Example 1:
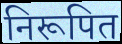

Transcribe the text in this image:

निरूपित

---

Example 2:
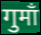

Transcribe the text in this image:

गुमाँ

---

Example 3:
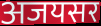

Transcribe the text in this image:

अजयसर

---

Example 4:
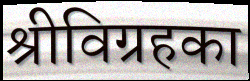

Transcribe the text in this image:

श्रीविग्रहका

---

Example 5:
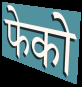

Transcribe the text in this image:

फेको